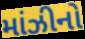
માંઝીનો